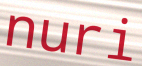
nuri